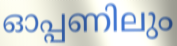
ഓപ്പണിലും